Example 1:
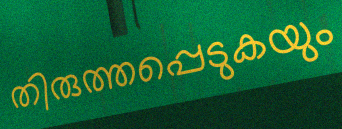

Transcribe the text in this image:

തിരുത്തപ്പെടുകയും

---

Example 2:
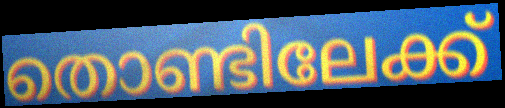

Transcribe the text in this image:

തൊണ്ടിലേക്ക്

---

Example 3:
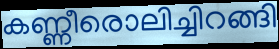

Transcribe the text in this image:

കണ്ണീരൊലിച്ചിറങ്ങി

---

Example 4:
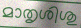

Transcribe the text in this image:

മാതൃശിശു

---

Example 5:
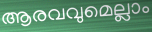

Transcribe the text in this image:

ആരവവുമെല്ലാം